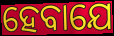
ହେବାଯେ